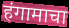
हंगामाचा